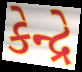
કેન્દ્રે